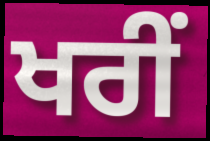
ਖਰੀਂ